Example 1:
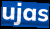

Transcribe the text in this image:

ujas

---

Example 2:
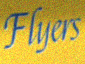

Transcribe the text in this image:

Flyers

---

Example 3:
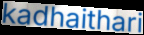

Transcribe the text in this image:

kadhaithari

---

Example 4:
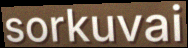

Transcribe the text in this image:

sorkuvai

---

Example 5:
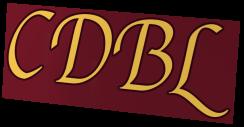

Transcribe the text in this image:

CDBL